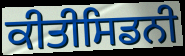
ਕੀਤੀਸਿਡਨੀ